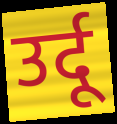
उर्दू